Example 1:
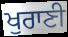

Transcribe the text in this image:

ਖੁਰਾਣੀ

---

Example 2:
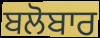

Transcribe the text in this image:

ਬਲੋਬਾਰ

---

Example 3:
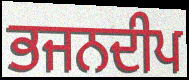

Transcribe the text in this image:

ਭਜਨਦੀਪ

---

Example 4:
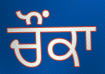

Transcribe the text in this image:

ਚੌੰਕਾ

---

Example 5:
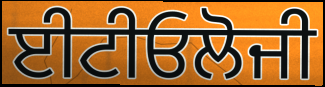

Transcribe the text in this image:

ਈਟੀਓਲੋਜੀ